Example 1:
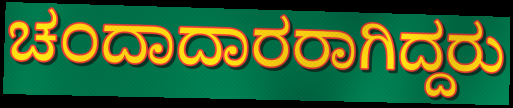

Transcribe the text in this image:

ಚಂದಾದಾರರಾಗಿದ್ದರು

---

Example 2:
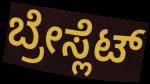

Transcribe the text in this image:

ಬ್ರೇಸ್ಲೆಟ್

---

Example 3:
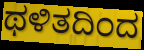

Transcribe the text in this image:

ಥಳಿತದಿಂದ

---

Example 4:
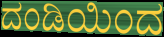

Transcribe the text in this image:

ದಂಡಿಯಿಂದ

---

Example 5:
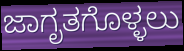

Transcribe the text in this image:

ಜಾಗೃತಗೊಳ್ಳಲು